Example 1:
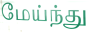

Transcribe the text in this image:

மேய்ந்து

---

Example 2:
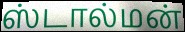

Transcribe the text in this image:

ஸ்டால்மன்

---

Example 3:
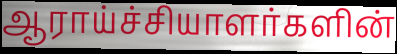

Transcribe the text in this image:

ஆராய்ச்சியாளர்களின்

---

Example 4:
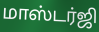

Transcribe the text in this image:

மாஸ்டர்ஜி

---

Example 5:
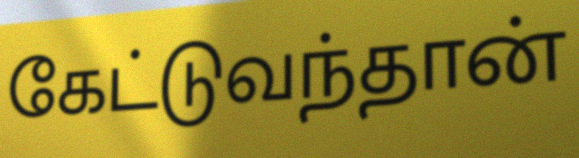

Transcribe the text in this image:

கேட்டுவந்தான்